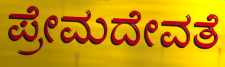
ಪ್ರೇಮದೇವತೆ